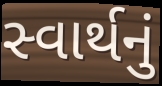
સ્વાર્થનું